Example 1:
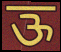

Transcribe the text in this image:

ক্ত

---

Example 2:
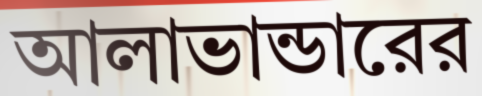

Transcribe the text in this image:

আলাভান্ডারের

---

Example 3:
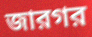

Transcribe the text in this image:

জারগর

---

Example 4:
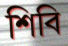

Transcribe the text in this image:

শিবি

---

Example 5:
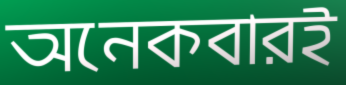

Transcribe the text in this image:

অনেকবারই